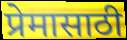
प्रेमासाठी